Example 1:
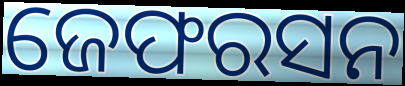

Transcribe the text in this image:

ଜେଫରସନ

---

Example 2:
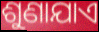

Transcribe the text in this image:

ଶୁଣାଯାଏ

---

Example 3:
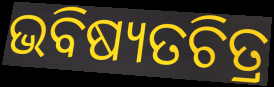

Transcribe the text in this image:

ଭବିଷ୍ୟତଚିତ୍ର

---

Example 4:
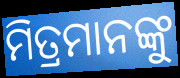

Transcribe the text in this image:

ମିତ୍ରମାନଙ୍କୁ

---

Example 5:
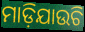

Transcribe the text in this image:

ମାଡ଼ିଯାଉଚି